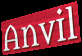
Anvil